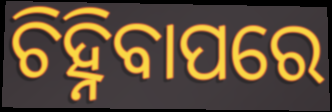
ଚିହ୍ନିବାପରେ